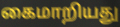
கைமாறியது